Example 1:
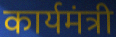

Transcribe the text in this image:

कार्यमंत्री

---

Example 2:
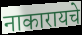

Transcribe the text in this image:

नाकारायचे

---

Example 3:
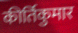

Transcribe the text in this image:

कीर्तिकुमार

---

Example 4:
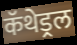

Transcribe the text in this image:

कॅथेड्रल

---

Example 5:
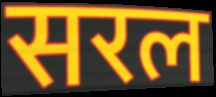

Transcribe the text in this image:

सरल